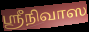
ஸ்ரீநிவாஸ